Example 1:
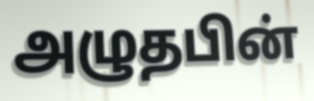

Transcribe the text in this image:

அழுதபின்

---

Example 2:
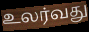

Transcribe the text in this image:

உலர்வது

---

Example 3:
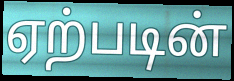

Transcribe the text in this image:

ஏற்படின்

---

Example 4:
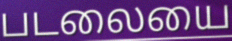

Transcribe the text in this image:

படலையை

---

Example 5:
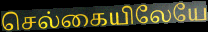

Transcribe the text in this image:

செல்கையிலேயே